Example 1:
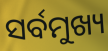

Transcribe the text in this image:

ସର୍ବମୁଖ୍ୟ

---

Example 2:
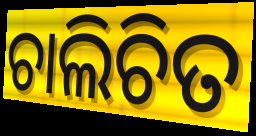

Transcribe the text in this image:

ଚାଲିଚିତ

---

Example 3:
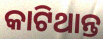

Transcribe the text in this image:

କାଟିଥାନ୍ତ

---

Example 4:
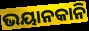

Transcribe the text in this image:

ଭୟାନକାନି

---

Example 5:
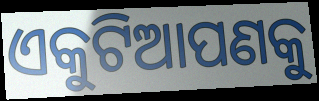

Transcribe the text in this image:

ଏକୁଟିଆପଣକୁ